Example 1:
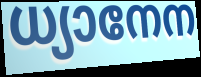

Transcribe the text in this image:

ധ്യാനേന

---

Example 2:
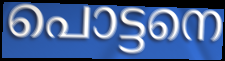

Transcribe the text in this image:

പൊട്ടനെ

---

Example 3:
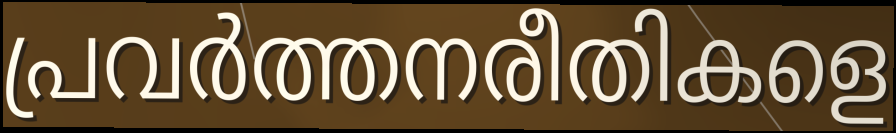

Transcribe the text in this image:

പ്രവർത്തനരീതികളെ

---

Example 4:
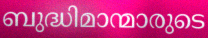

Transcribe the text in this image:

ബുദ്ധിമാന്മാരുടെ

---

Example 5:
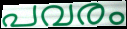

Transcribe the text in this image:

പവരം